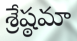
శ్రేష్ఠమా